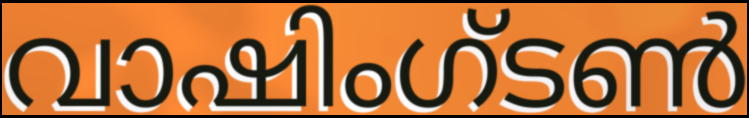
വാഷിംഗ്ടൺ